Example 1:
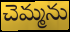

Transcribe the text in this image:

చెమ్మను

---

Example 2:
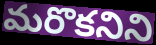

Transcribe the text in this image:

మరొకనిని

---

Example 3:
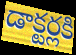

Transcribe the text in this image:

డాక్టర్లకి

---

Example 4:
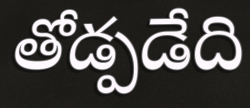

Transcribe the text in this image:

తోడ్పడేది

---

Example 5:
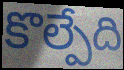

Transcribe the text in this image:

కొల్పేది